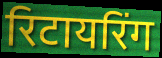
रिटायरिंग